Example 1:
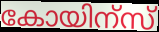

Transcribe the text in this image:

കോയിന്സ്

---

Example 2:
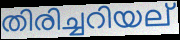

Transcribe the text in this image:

തിരിച്ചറിയല്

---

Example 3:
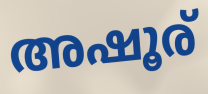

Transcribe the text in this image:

അഷൂര്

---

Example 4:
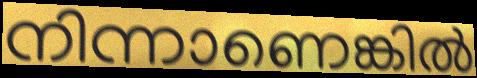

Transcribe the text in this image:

നിന്നാണെങ്കിൽ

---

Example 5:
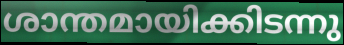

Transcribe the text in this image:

ശാന്തമായിക്കിടന്നു